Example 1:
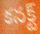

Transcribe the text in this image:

కనక్ట్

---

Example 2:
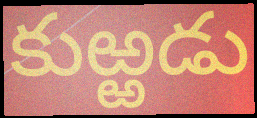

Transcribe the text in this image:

కుఱ్ఱడు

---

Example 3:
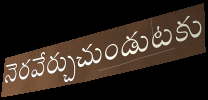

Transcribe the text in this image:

నెరవేర్చుచుండుటకు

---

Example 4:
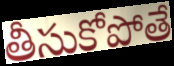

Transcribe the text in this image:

తీసుకోపోతే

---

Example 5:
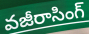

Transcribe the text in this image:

వజీరాసింగ్